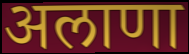
अलाणा